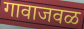
गावाजवळ